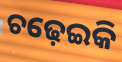
ଚଢ଼େଇକି